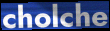
cholche